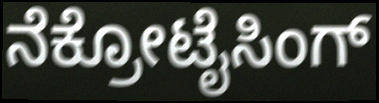
ನೆಕ್ರೋಟೈಸಿಂಗ್